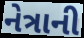
નેત્રાની